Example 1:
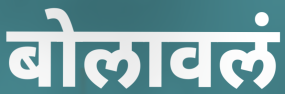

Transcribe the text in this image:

बोलावलं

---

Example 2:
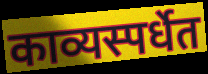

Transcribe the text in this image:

काव्यस्पर्धेत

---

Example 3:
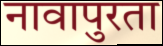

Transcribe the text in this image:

नावापुरता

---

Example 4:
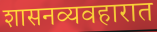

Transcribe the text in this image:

शासनव्यवहारात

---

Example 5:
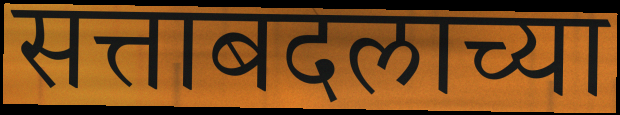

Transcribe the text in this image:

सत्ताबदलाच्या